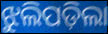
ଝୁଲିପଡ଼ିଲା